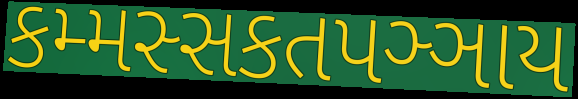
કમ્મસ્સકતપઞ્ઞાય